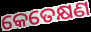
କେତେକ୍ଷଣ